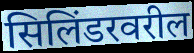
सिलिंडरवरील